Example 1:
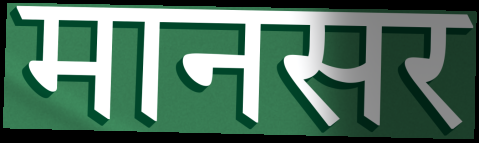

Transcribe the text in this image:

मानसर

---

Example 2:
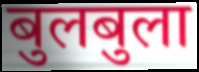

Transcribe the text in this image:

बुलबुला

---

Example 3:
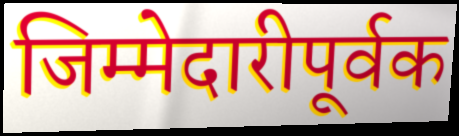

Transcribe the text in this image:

जिम्मेदारीपूर्वक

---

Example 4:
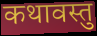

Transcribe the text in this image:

कथावस्तु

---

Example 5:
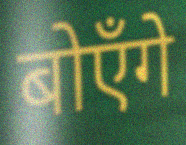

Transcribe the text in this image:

बोएँगे